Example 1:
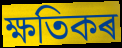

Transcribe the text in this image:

ক্ষতিকৰ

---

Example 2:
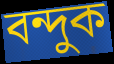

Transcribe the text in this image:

বন্দুক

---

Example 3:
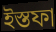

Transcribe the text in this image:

ইস্তফা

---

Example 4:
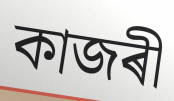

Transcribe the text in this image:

কাজৰী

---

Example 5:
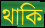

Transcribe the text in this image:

থাকি